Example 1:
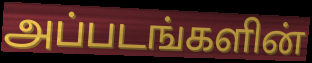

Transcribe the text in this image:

அப்படங்களின்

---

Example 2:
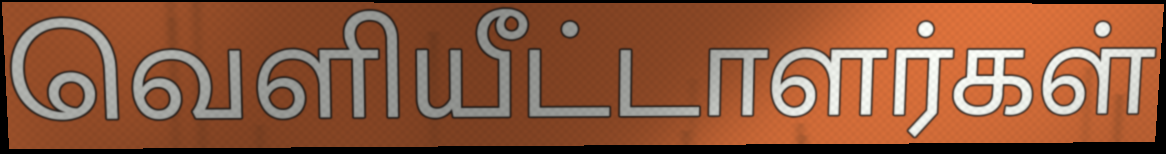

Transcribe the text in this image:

வெளியீட்டாளர்கள்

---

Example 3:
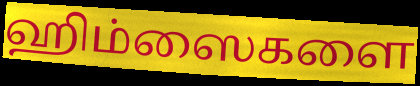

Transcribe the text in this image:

ஹிம்ஸைகளை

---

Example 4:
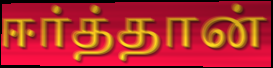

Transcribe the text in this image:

ஈர்த்தான்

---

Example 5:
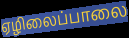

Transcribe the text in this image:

ஏழிலைப்பாலை